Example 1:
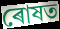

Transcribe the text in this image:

ৰোষত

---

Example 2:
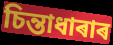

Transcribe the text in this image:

চিন্তাধাৰাৰ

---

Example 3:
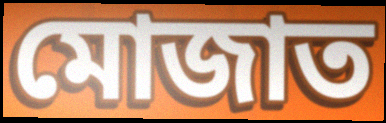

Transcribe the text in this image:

মোজাত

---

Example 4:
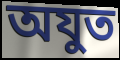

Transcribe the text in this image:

অযুত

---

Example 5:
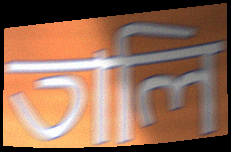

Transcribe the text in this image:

তালি